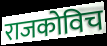
राजकोविच